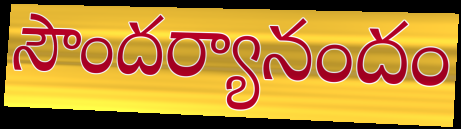
సౌందర్యానందం